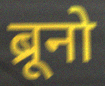
ब्रूनो